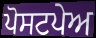
ਪੋਸਟਪੇਅ